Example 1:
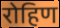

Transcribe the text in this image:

रोहिण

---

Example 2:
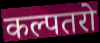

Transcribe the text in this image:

कल्पतरो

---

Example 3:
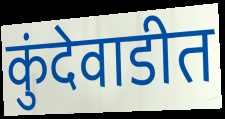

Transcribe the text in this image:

कुंदेवाडीत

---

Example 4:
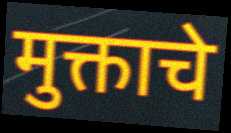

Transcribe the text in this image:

मुक्ताचे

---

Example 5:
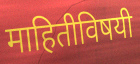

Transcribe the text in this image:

माहितीविषयी